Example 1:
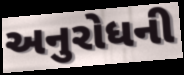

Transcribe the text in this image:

અનુરોધની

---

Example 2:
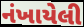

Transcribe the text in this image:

નંખાયેલી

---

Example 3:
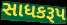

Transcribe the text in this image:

સાધકરૂપ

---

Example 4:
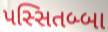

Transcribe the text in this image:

પસ્સિતબ્બા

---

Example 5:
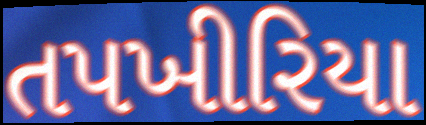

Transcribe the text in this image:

તપખીરિયા